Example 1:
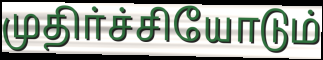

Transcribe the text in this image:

முதிர்ச்சியோடும்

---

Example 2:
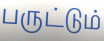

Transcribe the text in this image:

பருட்டும்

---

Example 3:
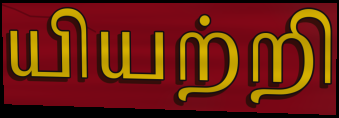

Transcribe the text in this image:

யியற்றி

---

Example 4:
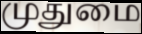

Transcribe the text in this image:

முதுமை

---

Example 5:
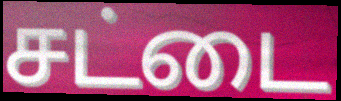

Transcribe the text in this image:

சட்டை